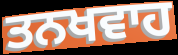
ਤਨਖਵਾਹ